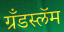
ग्रँडस्लॅम